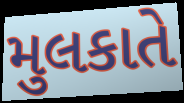
મુલકાતે